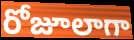
రోజూలాగా